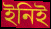
ইনিই